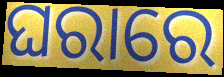
ଘରାରେ